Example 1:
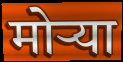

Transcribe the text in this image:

मोर्‍या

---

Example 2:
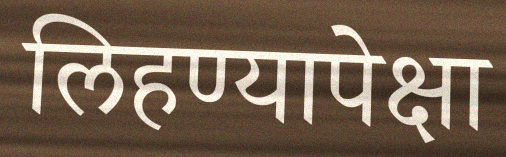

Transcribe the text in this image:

लिहण्यापेक्षा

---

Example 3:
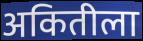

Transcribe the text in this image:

अकितीला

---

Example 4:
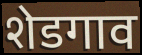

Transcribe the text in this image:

शेडगाव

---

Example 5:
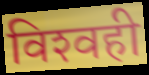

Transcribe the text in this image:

विश्वही